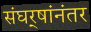
संघर्षांनंतर